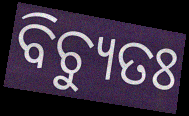
ବିଚ୍ୟୁତଃ